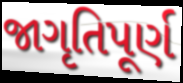
જાગૃતિપૂર્ણ